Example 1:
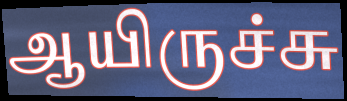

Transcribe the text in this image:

ஆயிருச்சு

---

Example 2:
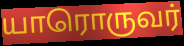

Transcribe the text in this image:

யாரொருவர்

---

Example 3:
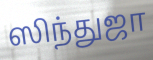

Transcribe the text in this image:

ஸிந்துஜா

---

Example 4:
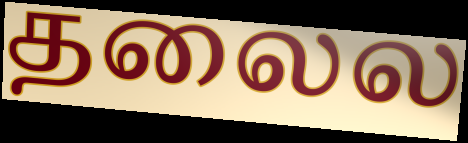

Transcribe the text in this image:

தலைல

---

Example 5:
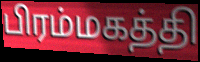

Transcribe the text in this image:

பிரம்மகத்தி